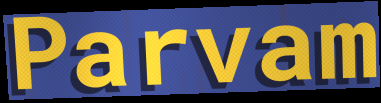
Parvam